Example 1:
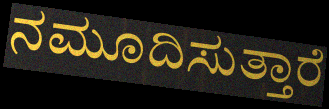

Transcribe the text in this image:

ನಮೂದಿಸುತ್ತಾರೆ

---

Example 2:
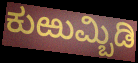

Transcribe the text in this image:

ಕುಱುಮ್ಬಿಡಿ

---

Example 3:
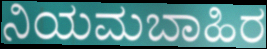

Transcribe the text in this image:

ನಿಯಮಬಾಹಿರ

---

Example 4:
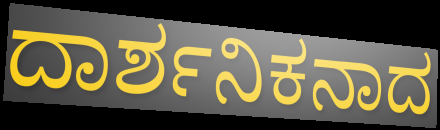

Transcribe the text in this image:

ದಾರ್ಶನಿಕನಾದ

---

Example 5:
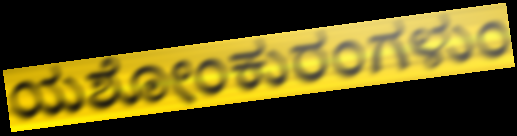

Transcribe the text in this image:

ಯಶೋಂಕುರಂಗಳುಂ